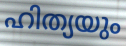
ഹിത്യയും